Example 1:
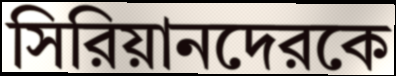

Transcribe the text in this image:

সিরিয়ানদেরকে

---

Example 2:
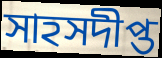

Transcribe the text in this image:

সাহসদীপ্ত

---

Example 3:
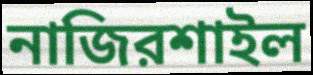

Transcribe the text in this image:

নাজিরশাইল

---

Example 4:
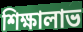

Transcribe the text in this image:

শিক্ষালাভ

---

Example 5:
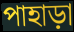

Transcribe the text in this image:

পাহাড়া